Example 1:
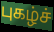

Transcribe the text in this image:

புகழ்ச்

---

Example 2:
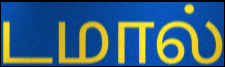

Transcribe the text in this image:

டமால்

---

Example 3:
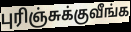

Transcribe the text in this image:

புரிஞ்சுக்குவீங்க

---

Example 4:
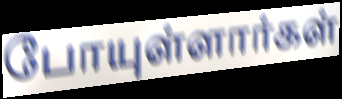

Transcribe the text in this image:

போயுள்ளார்கள்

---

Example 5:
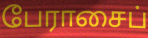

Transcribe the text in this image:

பேராசைப்